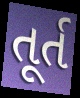
તૂર્ત